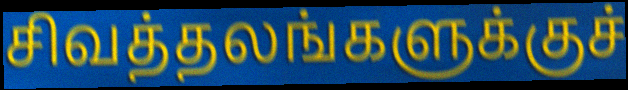
சிவத்தலங்களுக்குச்